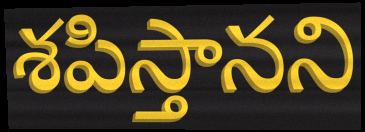
శపిస్తానని